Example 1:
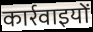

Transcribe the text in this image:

कार्रवाइयों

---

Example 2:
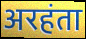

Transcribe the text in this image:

अरहंता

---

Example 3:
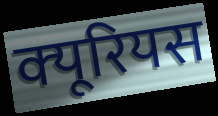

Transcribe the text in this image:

क्यूरियस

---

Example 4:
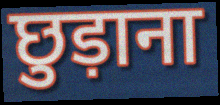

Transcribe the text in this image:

छुड़ाना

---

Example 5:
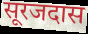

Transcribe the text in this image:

सूरजदास